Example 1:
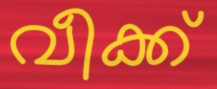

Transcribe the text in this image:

വീക്ക്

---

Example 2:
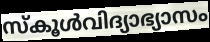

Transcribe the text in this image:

സ്കൂൾവിദ്യാഭ്യാസം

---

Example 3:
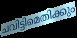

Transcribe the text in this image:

ചവിട്ടിമെതിക്കും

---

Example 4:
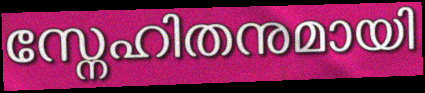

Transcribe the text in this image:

സ്നേഹിതനുമായി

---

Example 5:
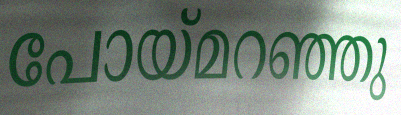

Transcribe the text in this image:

പോയ്മറഞ്ഞു